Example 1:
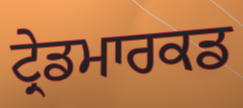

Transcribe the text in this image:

ਟ੍ਰੇਡਮਾਰਕਡ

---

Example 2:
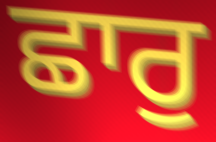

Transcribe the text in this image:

ਛਾਰੁ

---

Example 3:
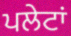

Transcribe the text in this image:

ਪਲੇਟਾਂ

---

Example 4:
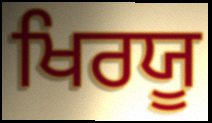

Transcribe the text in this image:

ਖਿਰਯੂ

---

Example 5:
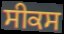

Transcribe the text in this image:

ਸੀਕਸ